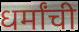
धर्मांची